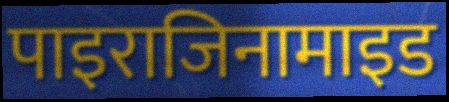
पाइराजिनामाइड